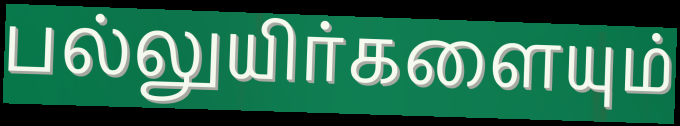
பல்லுயிர்களையும்